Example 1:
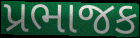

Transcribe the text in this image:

પ્રભાજક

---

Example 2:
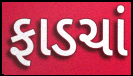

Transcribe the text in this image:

ફાડચાં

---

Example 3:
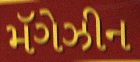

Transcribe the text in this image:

મૅગેઝીન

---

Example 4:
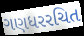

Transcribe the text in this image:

ગણધરરચિત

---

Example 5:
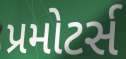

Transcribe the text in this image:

પ્રમોટર્સ